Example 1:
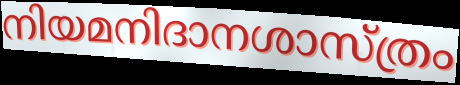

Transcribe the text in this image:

നിയമനിദാനശാസ്ത്രം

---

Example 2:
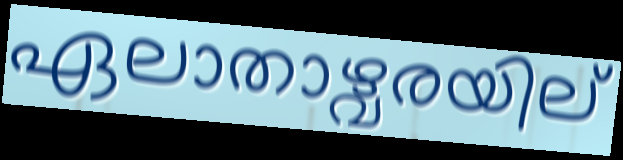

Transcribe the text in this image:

ഏലാതാഴ്വരയില്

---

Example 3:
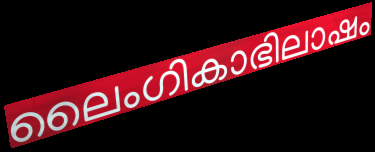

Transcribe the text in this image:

ലൈംഗികാഭിലാഷം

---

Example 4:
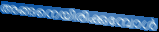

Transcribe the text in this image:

അങ്ങനെയിരിക്കുമ്പോൾ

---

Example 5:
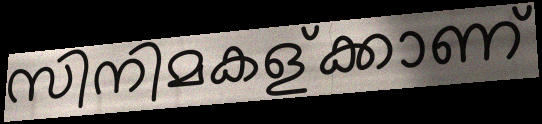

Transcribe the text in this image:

സിനിമകള്ക്കാണ്